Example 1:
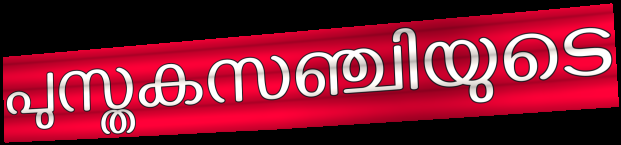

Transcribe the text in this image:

പുസ്തകസഞ്ചിയുടെ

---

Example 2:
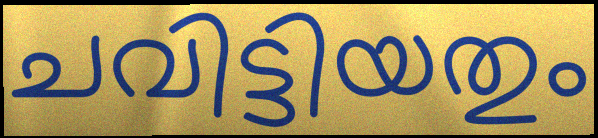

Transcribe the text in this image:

ചവിട്ടിയതും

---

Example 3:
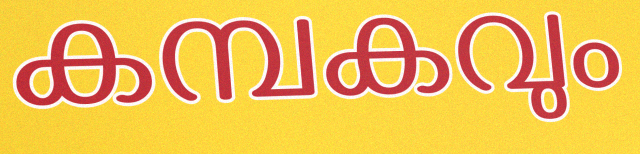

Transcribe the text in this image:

കമ്പകവും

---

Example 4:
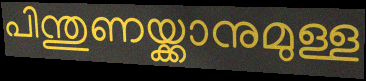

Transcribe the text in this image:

പിന്തുണയ്ക്കാനുമുള്ള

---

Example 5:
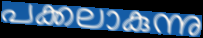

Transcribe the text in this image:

പക്കലാകുന്നു